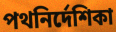
পথনির্দেশিকা